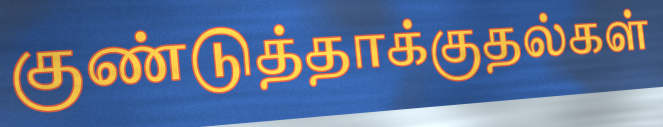
குண்டுத்தாக்குதல்கள்